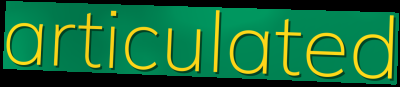
articulated